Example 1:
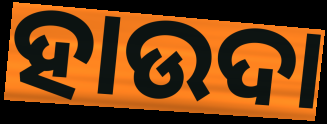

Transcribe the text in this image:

ହାଉଦା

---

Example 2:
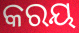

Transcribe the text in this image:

କରୟ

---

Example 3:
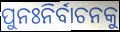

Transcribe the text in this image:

ପୁନଃନିର୍ବାଚନକୁ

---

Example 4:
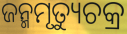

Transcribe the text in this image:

ଜନ୍ମମୃତ୍ୟୁଚକ୍ର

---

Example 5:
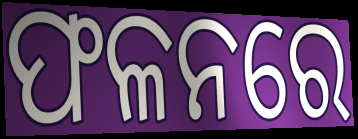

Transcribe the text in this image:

ଫଳନରେ